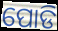
ପୋଡି